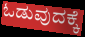
ಓಡುವುದಕ್ಕೆ